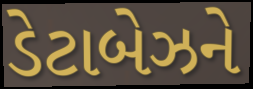
ડેટાબેઝને